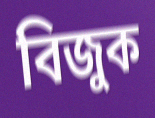
বিজুক